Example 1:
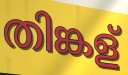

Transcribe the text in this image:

തിങ്കള്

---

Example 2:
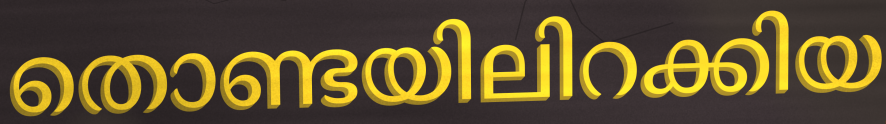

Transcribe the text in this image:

തൊണ്ടയിലിറക്കിയ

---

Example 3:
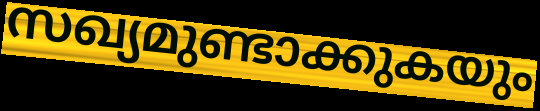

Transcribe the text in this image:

സഖ്യമുണ്ടാക്കുകയും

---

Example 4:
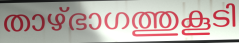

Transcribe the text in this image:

താഴ്ഭാഗത്തുകൂടി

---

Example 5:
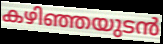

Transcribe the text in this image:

കഴിഞ്ഞയുടൻ